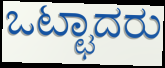
ಒಟ್ಟಾದರು